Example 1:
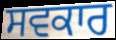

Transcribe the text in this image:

ਸਵਕਾਰ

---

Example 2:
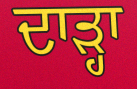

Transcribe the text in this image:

ਦਾੜ੍ਹਾ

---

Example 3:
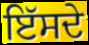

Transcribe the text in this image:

ਇੱਸਦੇ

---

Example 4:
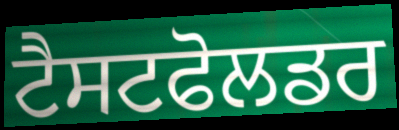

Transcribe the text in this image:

ਟੈਸਟਫੋਲਡਰ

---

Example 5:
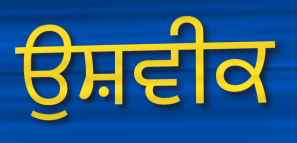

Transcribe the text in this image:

ਉਸ਼ਵੀਕ